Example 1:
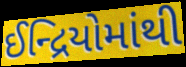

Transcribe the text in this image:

ઈન્દ્રિયોમાંથી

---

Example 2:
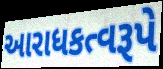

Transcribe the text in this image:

આરાધકત્વરૂપે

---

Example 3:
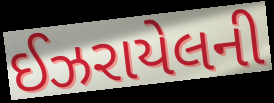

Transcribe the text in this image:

ઈઝરાયેલની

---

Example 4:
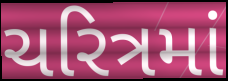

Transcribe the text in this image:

ચરિત્રમાં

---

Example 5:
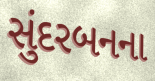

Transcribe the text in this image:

સુંદરબનના